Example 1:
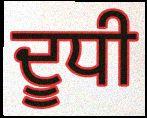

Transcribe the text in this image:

ਦੂਧੀ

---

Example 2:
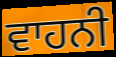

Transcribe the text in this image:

ਵਾਹਨੀ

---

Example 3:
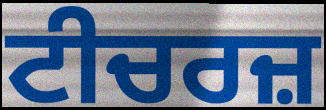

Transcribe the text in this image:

ਟੀਚਰਜ਼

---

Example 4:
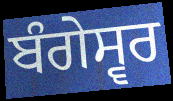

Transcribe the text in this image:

ਬੰਗੇਸ੍ਵਰ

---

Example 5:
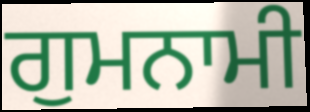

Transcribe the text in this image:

ਗੁਮਨਾਮੀ